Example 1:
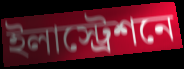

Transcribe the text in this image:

ইলাস্ট্রেশনে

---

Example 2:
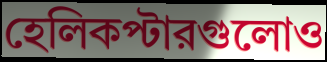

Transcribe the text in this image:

হেলিকপ্টারগুলোও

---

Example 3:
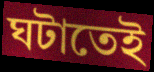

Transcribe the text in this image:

ঘটাতেই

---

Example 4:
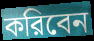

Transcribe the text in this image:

করিবেন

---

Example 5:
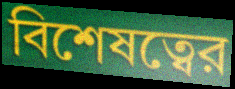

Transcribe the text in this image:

বিশেষত্বের